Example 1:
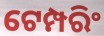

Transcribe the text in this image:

ଟେମ୍ପରିଂ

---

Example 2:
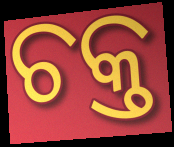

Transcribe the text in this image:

ଚକ୍ତ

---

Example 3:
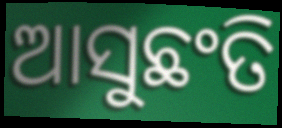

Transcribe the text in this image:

ଆସୁଛଂତି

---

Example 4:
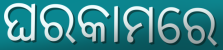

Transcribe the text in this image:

ଘରକାମରେ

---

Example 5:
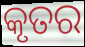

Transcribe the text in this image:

କୃତର